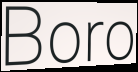
Boro